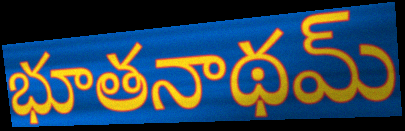
భూతనాథమ్